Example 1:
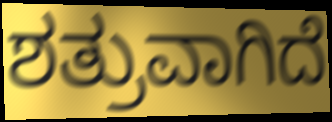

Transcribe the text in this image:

ಶತ್ರುವಾಗಿದೆ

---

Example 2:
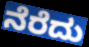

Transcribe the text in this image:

ನೆರೆದು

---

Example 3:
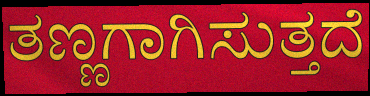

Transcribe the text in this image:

ತಣ್ಣಗಾಗಿಸುತ್ತದೆ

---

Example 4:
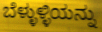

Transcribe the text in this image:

ಬೆಳ್ಳುಳ್ಳಿಯನ್ನು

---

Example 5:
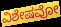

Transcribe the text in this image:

ವಿಶೇಷವೋ